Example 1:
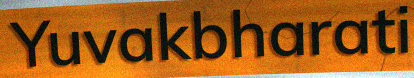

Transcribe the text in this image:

Yuvakbharati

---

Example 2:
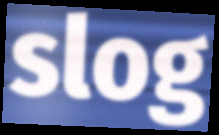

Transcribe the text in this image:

slog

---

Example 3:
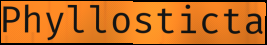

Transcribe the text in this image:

Phyllosticta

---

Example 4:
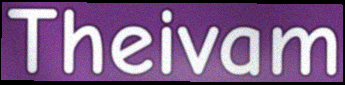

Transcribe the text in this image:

Theivam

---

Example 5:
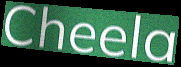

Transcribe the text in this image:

Cheela